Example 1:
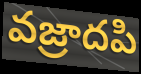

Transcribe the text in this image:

వజ్రాదపి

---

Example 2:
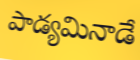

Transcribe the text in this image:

పాడ్యమినాడే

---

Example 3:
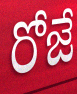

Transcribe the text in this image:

రోజే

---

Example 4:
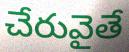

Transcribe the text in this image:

చేరువైతే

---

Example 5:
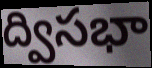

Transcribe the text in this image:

ద్విసభా